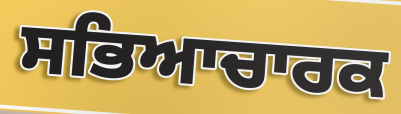
ਸਭਿਆਚਾਰਕ